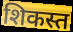
शिकस्त